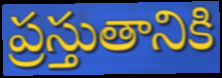
ప్రస్తుతానికి